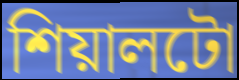
শিয়ালটো